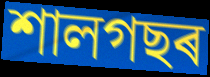
শালগছৰ